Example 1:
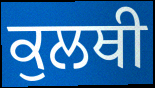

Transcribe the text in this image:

ਕੁਲਥੀ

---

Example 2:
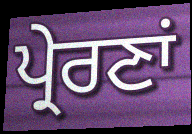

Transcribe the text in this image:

ਪ੍ਰੇਰਣਾਂ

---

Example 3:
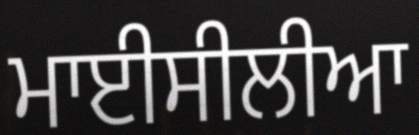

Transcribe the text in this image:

ਮਾਈਸੀਲੀਆ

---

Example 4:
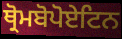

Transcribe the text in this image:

ਥ੍ਰੋਮਬੋਪੋਏਟਿਨ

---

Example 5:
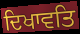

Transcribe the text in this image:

ਦਿਖਾਵਤਿ